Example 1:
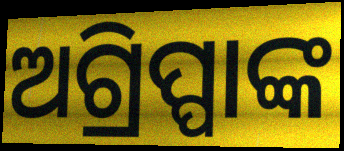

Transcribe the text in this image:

ଅଗ୍ରିପ୍ପାଙ୍କ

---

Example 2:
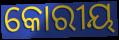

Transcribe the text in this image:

କୋରୀୟ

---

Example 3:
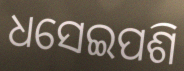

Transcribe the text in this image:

ଧସେଇପଶି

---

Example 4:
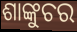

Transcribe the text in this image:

ଶାଙ୍କୁଚର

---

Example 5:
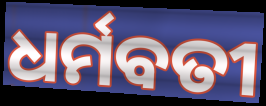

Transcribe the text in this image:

ଧର୍ମବତୀ